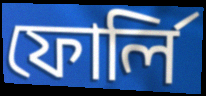
ফোর্লি